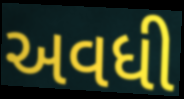
અવધી